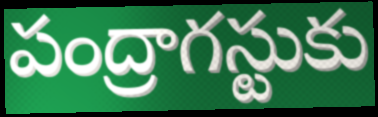
పంద్రాగస్టుకు